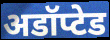
अडॉप्टेड